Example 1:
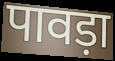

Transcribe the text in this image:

पावड़ा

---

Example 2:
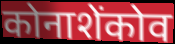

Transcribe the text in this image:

कोनाशेंकोव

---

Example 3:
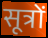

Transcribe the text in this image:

सूत्रों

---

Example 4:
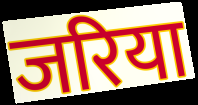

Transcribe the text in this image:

जरिया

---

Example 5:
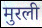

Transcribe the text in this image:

मुरली